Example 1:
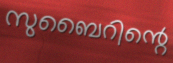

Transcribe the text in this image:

സുബൈറിന്റെ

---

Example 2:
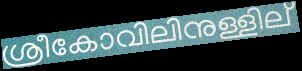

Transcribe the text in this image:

ശ്രീകോവിലിനുള്ളില്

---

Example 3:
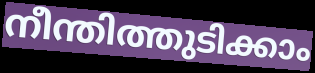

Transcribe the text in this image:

നീന്തിത്തുടിക്കാം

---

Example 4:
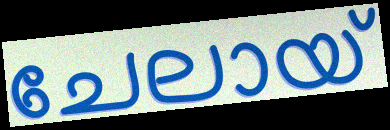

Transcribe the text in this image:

ചേലായ്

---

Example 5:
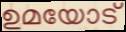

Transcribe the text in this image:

ഉമയോട്